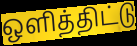
ஒளித்திட்டு